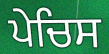
ਪੇਚਿਸ